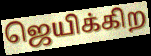
ஜெயிக்கிற